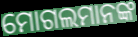
ମୋଗଲମାନଙ୍କ